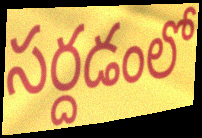
సర్దడంలో